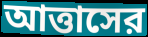
আত্তাসের